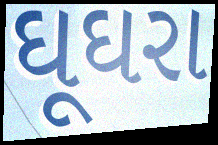
ઘૂઘરા